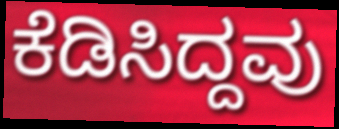
ಕೆಡಿಸಿದ್ದವು